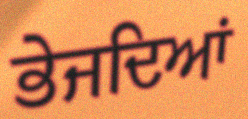
ਭੇਜਦਿਆਂ